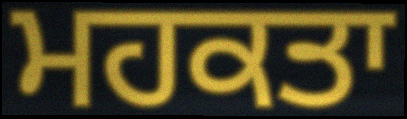
ਮਹਕਤਾ